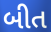
બીત